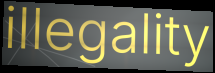
illegality